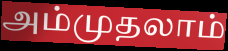
அம்முதலாம்